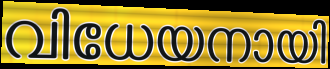
വിധേയനായി